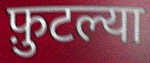
फ़ुटल्या